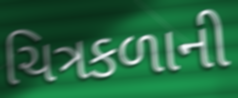
ચિત્રકળાની